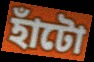
হাঁটো